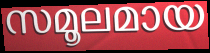
സമൂലമായ